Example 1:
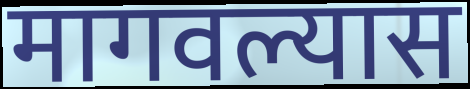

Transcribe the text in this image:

मागवल्यास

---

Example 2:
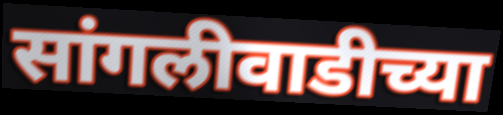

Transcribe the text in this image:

सांगलीवाडीच्या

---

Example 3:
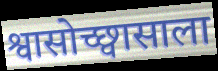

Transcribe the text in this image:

श्वासोच्छ्वासाला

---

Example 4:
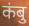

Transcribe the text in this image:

कंबु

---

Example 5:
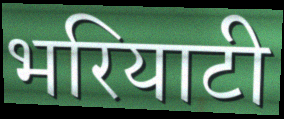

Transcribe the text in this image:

भरियाटी